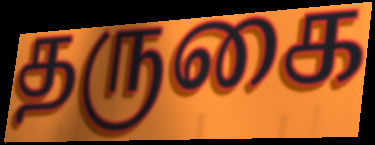
தருகை